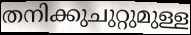
തനിക്കുചുറ്റുമുള്ള